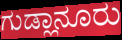
ಗುಡ್ಲಾನೂರು